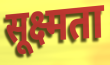
सूक्ष्मता